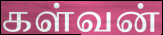
கள்வன்